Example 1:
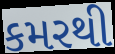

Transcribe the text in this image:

કમરથી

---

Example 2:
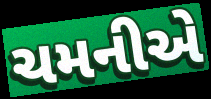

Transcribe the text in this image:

ચમનીએ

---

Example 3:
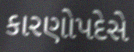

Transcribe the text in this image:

કારણોપદેસે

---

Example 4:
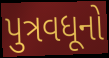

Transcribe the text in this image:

પુત્રવધૂનો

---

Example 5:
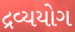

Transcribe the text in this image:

દ્રવ્યયોગ